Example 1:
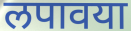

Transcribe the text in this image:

लपावया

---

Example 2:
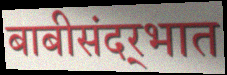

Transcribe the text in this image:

बाबीसंदर्भात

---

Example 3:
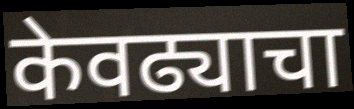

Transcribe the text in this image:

केवढ्याचा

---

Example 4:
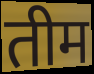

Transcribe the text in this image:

तीम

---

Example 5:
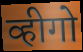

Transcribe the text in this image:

व्हीगो